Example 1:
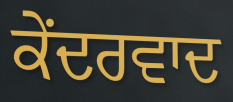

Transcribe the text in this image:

ਕੇਂਦਰਵਾਦ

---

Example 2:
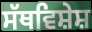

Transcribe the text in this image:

ਸੱਥਵਿਸ਼ੇਸ਼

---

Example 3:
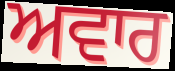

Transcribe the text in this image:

ਅਵਾਰ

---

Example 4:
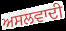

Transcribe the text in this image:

ਅਸਲਵਾਦੀ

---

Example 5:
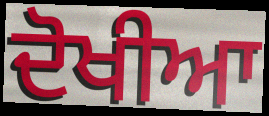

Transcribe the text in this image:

ਦੋਖੀਆ